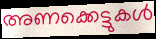
അണക്കെട്ടുകൾ